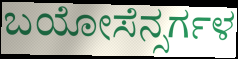
ಬಯೋಸೆನ್ಸರ್ಗಳ